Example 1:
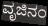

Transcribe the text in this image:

ವೃಜಿನಂ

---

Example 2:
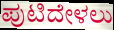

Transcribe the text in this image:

ಪುಟಿದೇಳಲು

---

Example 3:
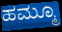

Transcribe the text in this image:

ಹಮ್ಮೂ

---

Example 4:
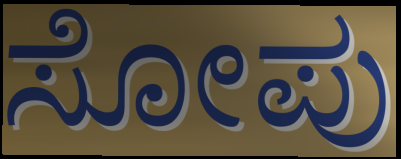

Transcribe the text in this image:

ಸೋಪು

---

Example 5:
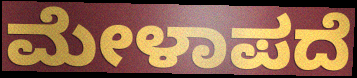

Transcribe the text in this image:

ಮೇಳಾಪದೆ